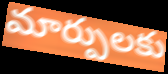
మార్పులకు